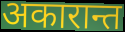
अकारान्त